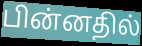
பின்னதில்